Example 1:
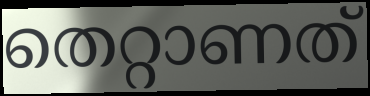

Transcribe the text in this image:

തെറ്റാണത്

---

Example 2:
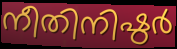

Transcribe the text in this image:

നീതിനിഷ്ഠർ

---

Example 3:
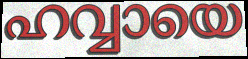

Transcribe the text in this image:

ഹവ്വായെ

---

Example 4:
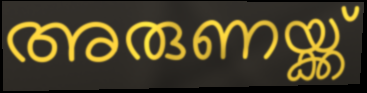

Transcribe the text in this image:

അരുണയ്ക്ക്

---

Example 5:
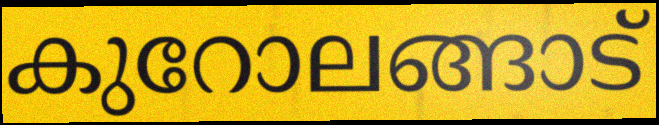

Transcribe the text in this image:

കുറോലങ്ങാട്